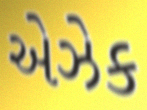
એઝેક